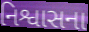
નિશ્વાસના